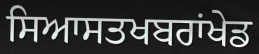
ਸਿਆਸਤਖਬਰਾਂਖੇਡ